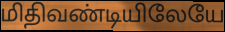
மிதிவண்டியிலேயே